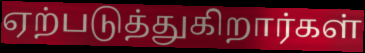
ஏற்படுத்துகிறார்கள்